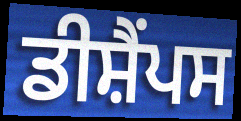
ਡੀਸ਼ੈਂਪਸ